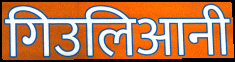
गिउलिआनी